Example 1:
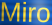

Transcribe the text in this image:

Miro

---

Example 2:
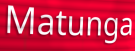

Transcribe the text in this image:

Matunga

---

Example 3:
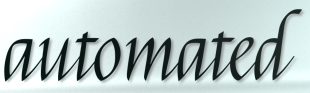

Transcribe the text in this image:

automated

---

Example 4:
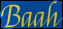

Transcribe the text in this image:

Baah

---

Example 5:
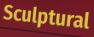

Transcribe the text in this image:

Sculptural